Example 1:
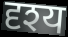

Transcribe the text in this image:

दृश्‍य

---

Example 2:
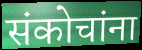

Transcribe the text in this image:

संकोचांना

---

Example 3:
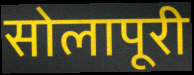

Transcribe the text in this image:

सोलापूरी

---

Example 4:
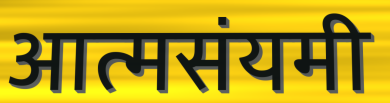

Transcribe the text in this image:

आत्मसंयमी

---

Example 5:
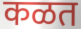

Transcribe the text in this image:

कळत